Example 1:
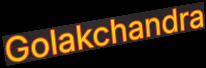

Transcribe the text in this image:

Golakchandra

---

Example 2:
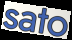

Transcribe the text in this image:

sato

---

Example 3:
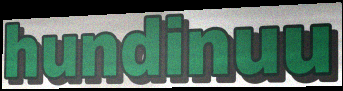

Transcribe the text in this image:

hundinuu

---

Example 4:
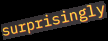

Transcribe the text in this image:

surprisingly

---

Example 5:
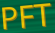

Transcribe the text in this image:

PFT